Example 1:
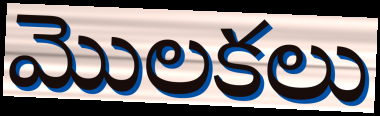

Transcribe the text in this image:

మొలకలు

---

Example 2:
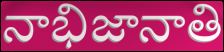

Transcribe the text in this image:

నాభిజానాతి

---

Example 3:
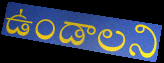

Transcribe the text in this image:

ఉండాలని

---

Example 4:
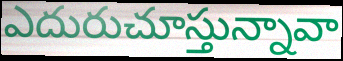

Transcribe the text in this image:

ఎదురుచూస్తున్నావా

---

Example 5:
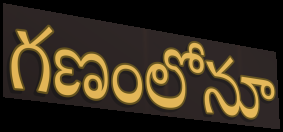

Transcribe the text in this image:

గణంలోనూ